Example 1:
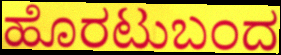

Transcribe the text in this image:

ಹೊರಟುಬಂದ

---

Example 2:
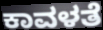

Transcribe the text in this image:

ಕಾವಳತೆ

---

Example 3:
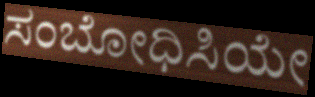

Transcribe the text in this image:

ಸಂಬೋಧಿಸಿಯೇ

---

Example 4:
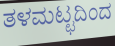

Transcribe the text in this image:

ತಳಮಟ್ಟದಿಂದ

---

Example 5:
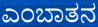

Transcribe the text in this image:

ಎಂಬಾತನ